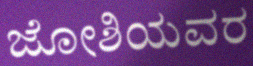
ಜೋಶಿಯವರ